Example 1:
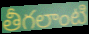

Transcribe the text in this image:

తీగలాంటి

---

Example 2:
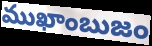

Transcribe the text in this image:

ముఖాంబుజం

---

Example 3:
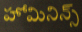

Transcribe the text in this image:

హోమినిన్స్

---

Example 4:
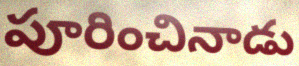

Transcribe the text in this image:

పూరించినాడు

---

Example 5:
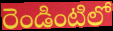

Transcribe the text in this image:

రెండింటిలో